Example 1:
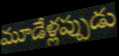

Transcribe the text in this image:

మూడేళ్లప్పుడు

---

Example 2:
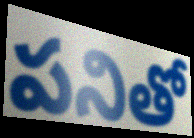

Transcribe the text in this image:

పనితో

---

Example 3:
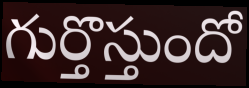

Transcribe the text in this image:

గుర్తొస్తుందో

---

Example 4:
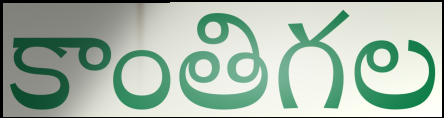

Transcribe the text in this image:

కాంతిగల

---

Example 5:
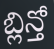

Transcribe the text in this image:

బ్లిన్తో